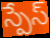
స్పేస్